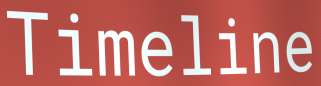
Timeline